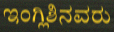
ಇಂಗ್ಲಿಶಿನವರು